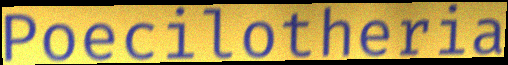
Poecilotheria